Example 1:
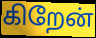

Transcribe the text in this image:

கிறேன்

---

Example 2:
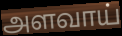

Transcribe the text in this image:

அளவாய்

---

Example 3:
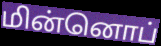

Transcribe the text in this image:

மின்னொப்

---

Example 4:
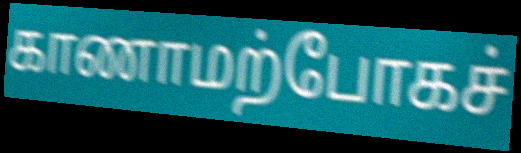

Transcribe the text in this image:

காணாமற்போகச்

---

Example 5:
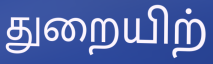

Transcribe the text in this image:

துறையிற்